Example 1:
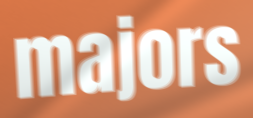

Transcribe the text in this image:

majors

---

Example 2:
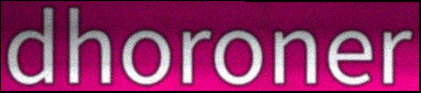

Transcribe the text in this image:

dhoroner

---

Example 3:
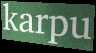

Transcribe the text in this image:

karpu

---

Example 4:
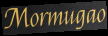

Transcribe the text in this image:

Mormugao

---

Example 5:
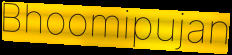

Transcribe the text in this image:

Bhoomipujan